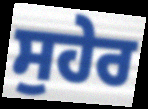
ਸੁਹੇਰ